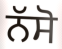
ਨੱਸੋ